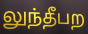
லுந்தீபற